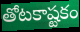
తోటకాష్టకం